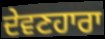
ਦੇਵਣਹਾਰਾ